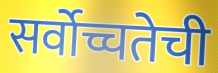
सर्वोच्चतेची